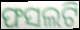
ଫସଲଟି